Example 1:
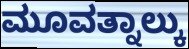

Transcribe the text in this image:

ಮೂವತ್ನಾಲ್ಕು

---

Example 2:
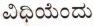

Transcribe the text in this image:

ವಿಧಿಯೆಂದು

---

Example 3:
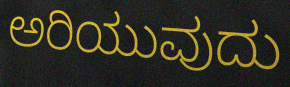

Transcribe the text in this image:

ಅರಿಯುವುದು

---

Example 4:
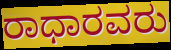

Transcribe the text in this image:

ರಾಧಾರವರು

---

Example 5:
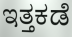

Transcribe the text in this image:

ಇತ್ತಕಡೆ